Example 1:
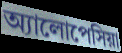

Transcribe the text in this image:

অ্যালোপেসিয়া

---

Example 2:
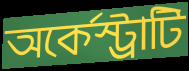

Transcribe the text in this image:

অর্কেস্ট্রাটি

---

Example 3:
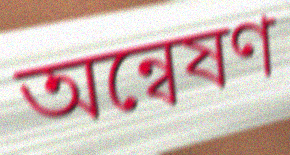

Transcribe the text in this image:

অন্বেষণ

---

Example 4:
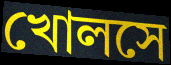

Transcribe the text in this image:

খোলসে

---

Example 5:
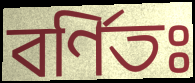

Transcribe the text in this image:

বর্ণিতঃ